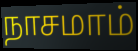
நாசமாம்